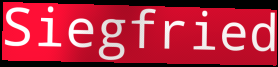
Siegfried